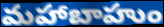
మహాబాహుం